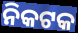
ନିକଟକ